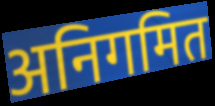
अनिगमित